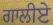
ਗਾਲੀਏ